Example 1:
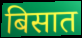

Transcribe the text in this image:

बिसात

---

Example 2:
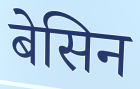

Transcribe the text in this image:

बेसिन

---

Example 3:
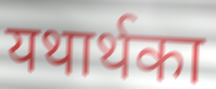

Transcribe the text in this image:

यथार्थका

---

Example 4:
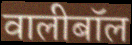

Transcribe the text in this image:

वालीबॉल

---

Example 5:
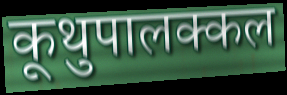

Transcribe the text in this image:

कूथुपालक्कल